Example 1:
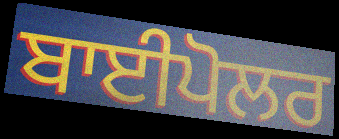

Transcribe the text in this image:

ਬਾਈਪੋਲਰ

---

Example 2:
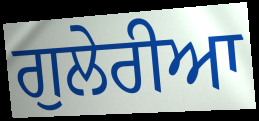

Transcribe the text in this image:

ਗੁਲੇਰੀਆ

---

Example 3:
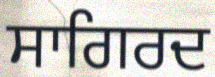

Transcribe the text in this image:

ਸਾਗਿਰਦ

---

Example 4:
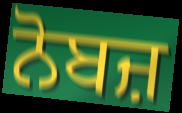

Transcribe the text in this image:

ਨੋਬਜ਼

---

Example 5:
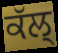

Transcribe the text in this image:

ਕੱਲ੍